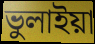
ভুলাইয়া